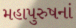
મહાપુરુષનાં